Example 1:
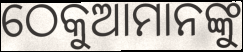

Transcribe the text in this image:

ଠେକୁଆମାନଙ୍କୁ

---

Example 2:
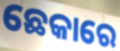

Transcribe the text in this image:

ଛେକାରେ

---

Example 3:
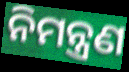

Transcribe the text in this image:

ନିମନ୍ତ୍ରଣ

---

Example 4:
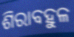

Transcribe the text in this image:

ଶିରାବହୁଳ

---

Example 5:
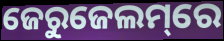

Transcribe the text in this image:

ଜେରୁଜେଲମ୍‌ରେ